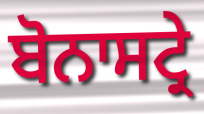
ਬੋਨਾਸਟ੍ਰੇ